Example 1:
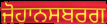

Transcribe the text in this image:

ਜੋਹਾਨਸਬਰਗ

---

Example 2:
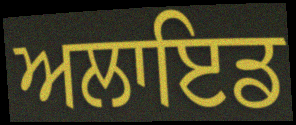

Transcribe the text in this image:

ਅਲਾਇਡ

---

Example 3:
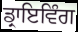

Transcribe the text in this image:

ਡ੍ਰਾਇਵਿੰਗ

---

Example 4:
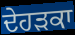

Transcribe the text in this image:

ਦੇਹੜਕਾ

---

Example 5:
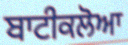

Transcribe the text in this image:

ਬਾਟੀਕਲੋਆ